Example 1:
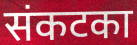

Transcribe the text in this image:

संकटका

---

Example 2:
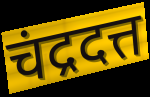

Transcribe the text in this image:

चंद्रदत्त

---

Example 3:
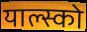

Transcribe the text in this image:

याल्स्को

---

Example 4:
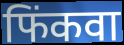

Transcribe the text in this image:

फिंकवा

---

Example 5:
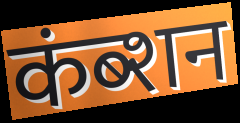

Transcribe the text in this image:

कंब्शन